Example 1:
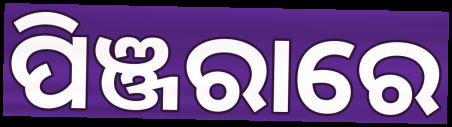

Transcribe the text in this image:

ପିଞ୍ଜରାରେ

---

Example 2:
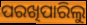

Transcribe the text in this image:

ପରଖିପାରିଲୁ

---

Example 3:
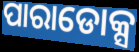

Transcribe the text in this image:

ପାରାଡୋକ୍ସ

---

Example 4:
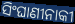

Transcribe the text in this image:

ସିଂଘାଣୀନାକୀ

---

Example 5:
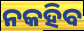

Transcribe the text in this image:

ନକହିବ